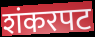
शंकरपट